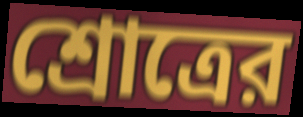
শ্রোত্রের